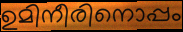
ഉമിനീരിനൊപ്പം